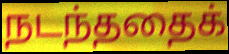
நடந்ததைக்